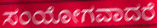
ಸಂಯೋಗವಾದರೆ